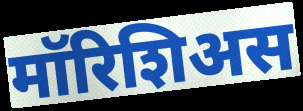
मॉरिशिअस